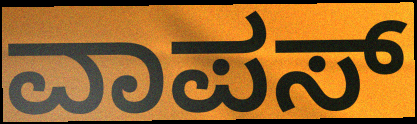
ವಾಪಸ್